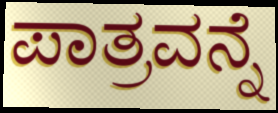
ಪಾತ್ರವನ್ನೆ